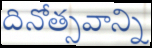
దినోత్సవాన్ని